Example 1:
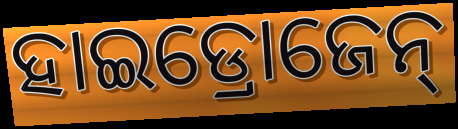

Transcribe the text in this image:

ହାଇଡ୍ରୋଜେନ୍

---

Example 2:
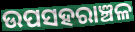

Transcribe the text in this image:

ଉପସହରାଞ୍ଚଳ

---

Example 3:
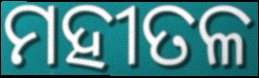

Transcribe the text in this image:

ମହୀତଳ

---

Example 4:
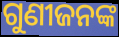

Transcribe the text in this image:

ଗୁଣୀଜନଙ୍କ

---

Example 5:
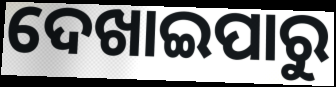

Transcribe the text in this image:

ଦେଖାଇପାରୁ